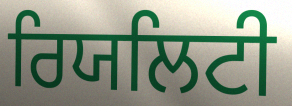
ਰਿਯਲਿਟੀ